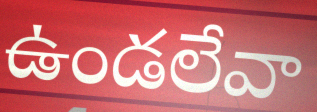
ఉండలేవా